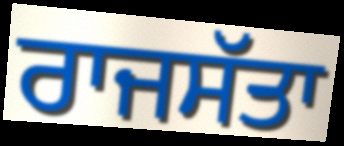
ਰਾਜਸੱਤਾ